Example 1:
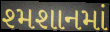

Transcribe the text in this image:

શ્મશાનમાં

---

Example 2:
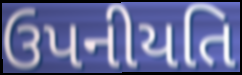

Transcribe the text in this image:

ઉપનીયતિ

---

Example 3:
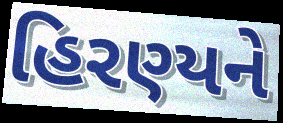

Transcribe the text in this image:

હિરણ્યને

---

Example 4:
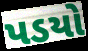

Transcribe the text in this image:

પડયો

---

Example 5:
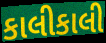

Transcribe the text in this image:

કાલીકાલી